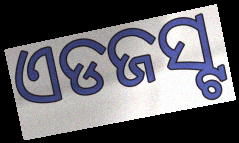
ଏଡଜସ୍ଟ